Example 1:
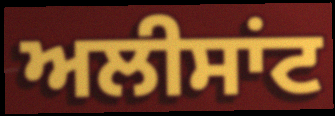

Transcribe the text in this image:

ਅਲੀਸਾਂਟ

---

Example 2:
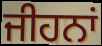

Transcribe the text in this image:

ਜੀਹਨਾਂ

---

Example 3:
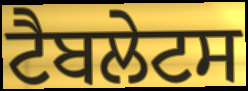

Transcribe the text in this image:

ਟੈਬਲੇਟਸ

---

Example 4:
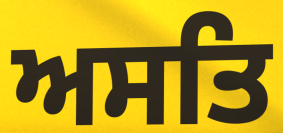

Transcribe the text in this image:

ਅਸਤਿ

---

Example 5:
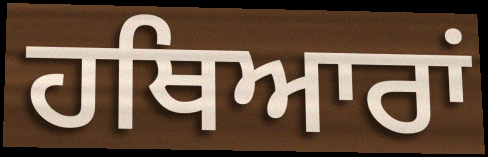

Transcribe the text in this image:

ਹਥਿਆਰਾਂ